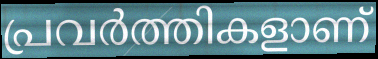
പ്രവർത്തികളാണ്